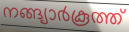
നങ്ങ്യാർകൂത്ത്